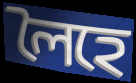
লৈহে